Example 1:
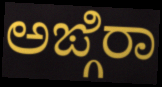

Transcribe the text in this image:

ಅಙ್ಗಿರಾ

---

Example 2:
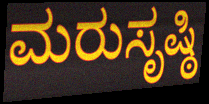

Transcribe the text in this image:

ಮರುಸೃಷ್ಠಿ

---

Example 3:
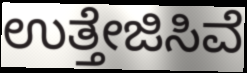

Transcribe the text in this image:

ಉತ್ತೇಜಿಸಿವೆ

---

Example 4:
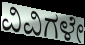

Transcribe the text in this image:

ವಿವಿಗಳೇ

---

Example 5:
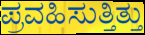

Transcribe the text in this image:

ಪ್ರವಹಿಸುತ್ತಿತ್ತು